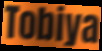
Tobiya